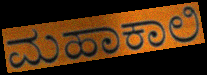
ಮಹಾಕಾಲಿ